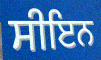
ਸੀਇਨ